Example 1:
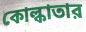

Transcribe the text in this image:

কোল্কাতার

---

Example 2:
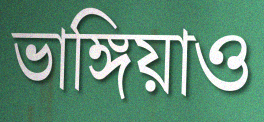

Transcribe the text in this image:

ভাঙ্গিয়াও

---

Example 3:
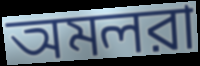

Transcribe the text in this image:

অমলরা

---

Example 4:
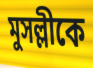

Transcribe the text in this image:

মুসল্লীকে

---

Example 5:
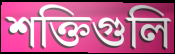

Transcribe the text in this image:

শক্তিগুলি